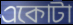
একোটা